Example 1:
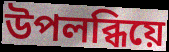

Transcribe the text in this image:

উপলব্ধিয়ে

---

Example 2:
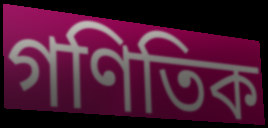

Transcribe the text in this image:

গণিতিক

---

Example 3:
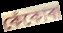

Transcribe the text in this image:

কেঁকোৰা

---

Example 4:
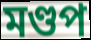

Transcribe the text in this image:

মণ্ডপ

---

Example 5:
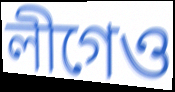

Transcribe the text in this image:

লীগেও